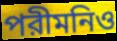
পরীমনিও